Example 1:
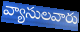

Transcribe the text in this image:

వ్యాసులవారు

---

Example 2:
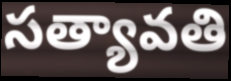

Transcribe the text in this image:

సత్యావతి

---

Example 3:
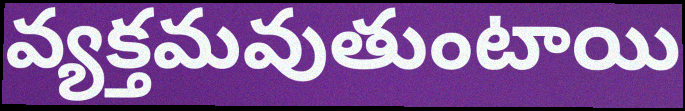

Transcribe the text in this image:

వ్యక్తమవుతుంటాయి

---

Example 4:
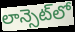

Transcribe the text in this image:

లాన్సెట్‌లో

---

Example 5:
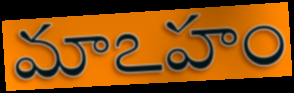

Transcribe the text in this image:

మాఽహం